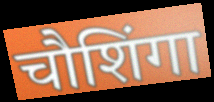
चौशिंगा